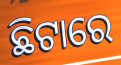
ଛିଟାରେ